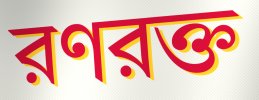
রণরক্ত